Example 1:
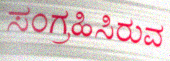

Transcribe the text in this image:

ಸಂಗ್ರಹಿಸಿರುವ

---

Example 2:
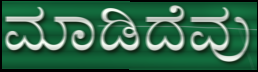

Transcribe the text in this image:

ಮಾಡಿದೆವು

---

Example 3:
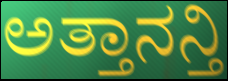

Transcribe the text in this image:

ಅತ್ತಾನನ್ತಿ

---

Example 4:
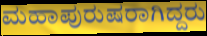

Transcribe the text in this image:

ಮಹಾಪುರುಷರಾಗಿದ್ದರು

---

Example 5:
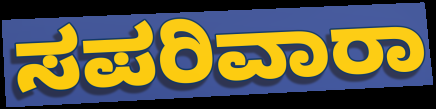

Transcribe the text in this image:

ಸಪರಿವಾರಾ